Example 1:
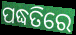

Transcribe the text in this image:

ପଦ୍ଧତିରେ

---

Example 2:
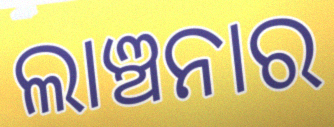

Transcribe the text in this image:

ଲାଞ୍ଚନାର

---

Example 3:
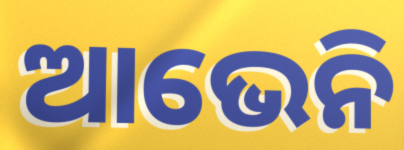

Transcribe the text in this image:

ଆଭେନି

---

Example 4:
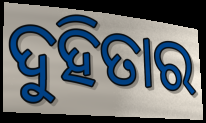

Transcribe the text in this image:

ଦୁହିତାର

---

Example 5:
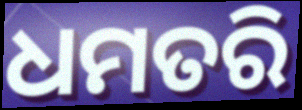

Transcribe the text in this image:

ଧମତରି